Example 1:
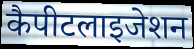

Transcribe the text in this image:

कैपीटलाइजेशन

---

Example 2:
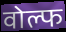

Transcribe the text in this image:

वोल्फ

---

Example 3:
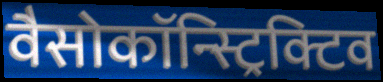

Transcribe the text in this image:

वैसोकॉन्स्ट्रिक्टिव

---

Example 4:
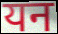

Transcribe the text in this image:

यन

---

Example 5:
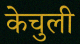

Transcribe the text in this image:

केचुली